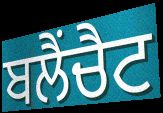
ਬਲੈਂਚੈਟ